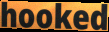
hooked